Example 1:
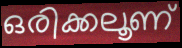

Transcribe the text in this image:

ഒരിക്കലൂണ്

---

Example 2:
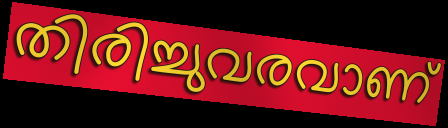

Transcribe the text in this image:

തിരിച്ചുവരവാണ്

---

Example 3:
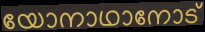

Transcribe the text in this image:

യോനാഥാനോട്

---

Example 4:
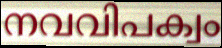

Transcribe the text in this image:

നവവിപക്വം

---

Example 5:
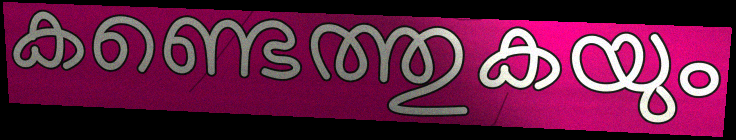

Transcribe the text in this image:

കണ്ടെത്തുകയും